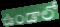
ఉండాలో